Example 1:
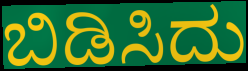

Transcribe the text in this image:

ಬಿಡಿಸಿದು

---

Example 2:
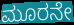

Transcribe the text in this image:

ಮೂರನೇ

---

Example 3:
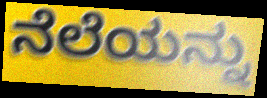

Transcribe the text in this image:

ನೆಲೆಯನ್ನು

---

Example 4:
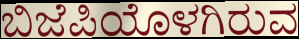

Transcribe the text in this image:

ಬಿಜೆಪಿಯೊಳಗಿರುವ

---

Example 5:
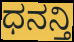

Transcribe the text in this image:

ಧನನ್ತಿ